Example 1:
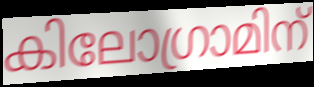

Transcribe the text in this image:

കിലോഗ്രാമിന്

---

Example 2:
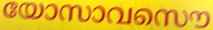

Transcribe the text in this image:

യോസാവസൌ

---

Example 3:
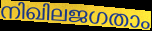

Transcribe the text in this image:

നിഖിലജഗതാം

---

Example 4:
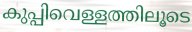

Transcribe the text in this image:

കുപ്പിവെള്ളത്തിലൂടെ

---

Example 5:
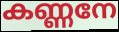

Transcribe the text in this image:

കണ്ണനേ